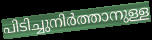
പിടിച്ചുനിർത്താനുള്ള